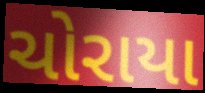
ચોરાયા